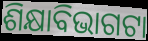
ଶିକ୍ଷାବିଭାଗଟା